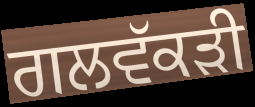
ਗਲਵੱਕਡ਼ੀ